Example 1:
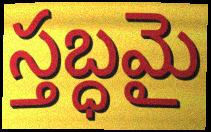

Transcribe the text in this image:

స్తబ్ధమై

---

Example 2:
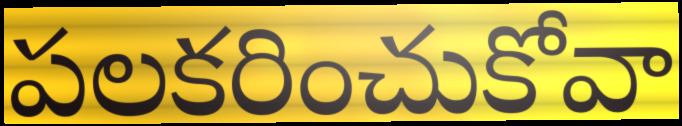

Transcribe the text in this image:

పలకరించుకోవా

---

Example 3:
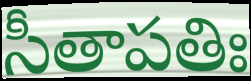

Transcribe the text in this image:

సీతాపతిః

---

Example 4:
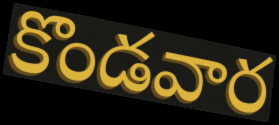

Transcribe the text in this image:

కొండవార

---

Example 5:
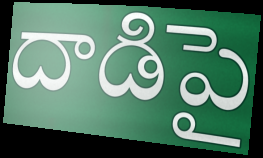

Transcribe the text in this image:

దాడిపై